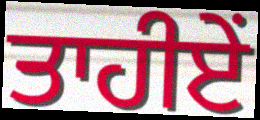
ਤਾਹੀਏਂ